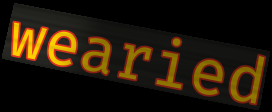
wearied